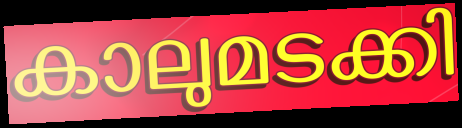
കാലുമടക്കി